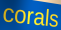
corals